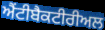
ਐਂਟੀਬੈਕਟੀਰੀਅਲ